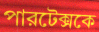
পারটেক্সকে